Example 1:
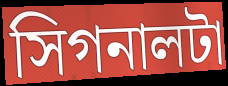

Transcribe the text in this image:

সিগনালটা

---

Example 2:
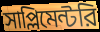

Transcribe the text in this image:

সাপ্লিমেন্টরি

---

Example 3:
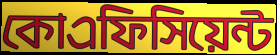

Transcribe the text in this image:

কোএফিসিয়েন্ট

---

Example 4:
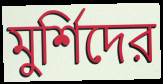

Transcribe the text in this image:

মুর্শিদের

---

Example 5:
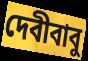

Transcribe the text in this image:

দেবীবাবু